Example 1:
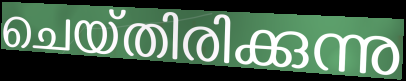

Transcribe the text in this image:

ചെയ്‌തിരിക്കുന്നു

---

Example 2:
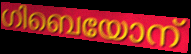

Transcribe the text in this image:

ഗിബെയോന്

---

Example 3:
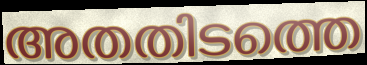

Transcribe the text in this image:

അതതിടത്തെ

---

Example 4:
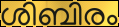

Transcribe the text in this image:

ശിബിരം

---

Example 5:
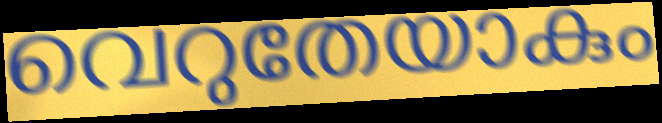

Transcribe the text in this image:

വെറുതേയാകും